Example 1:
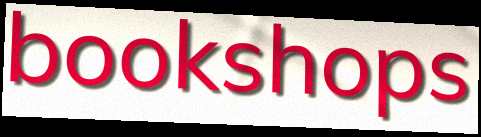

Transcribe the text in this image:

bookshops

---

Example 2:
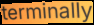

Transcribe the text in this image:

terminally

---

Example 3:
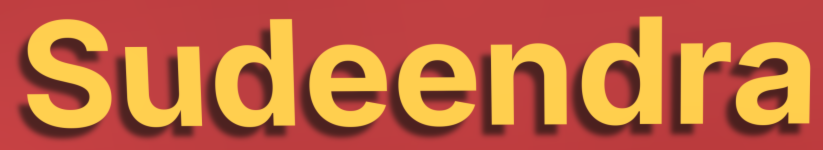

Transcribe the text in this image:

Sudeendra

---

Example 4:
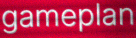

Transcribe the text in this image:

gameplan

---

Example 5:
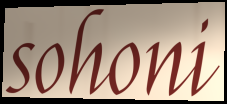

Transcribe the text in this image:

sohoni